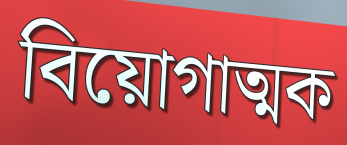
বিয়োগাত্মক